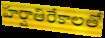
హర్షాతిరేకాలతో